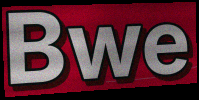
Bwe